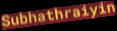
Subhathraiyin